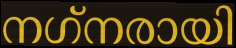
നഗ്‌നരായി